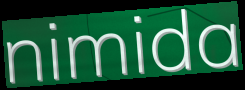
nimida